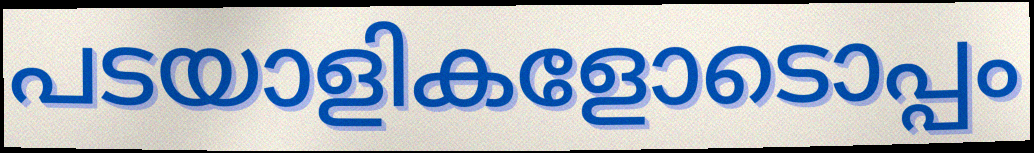
പടയാളികളോടൊപ്പം